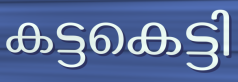
കട്ടകെട്ടി